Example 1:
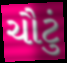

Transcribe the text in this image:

ચૌટું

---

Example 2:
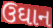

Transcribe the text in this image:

ઉઘાન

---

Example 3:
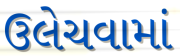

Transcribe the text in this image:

ઉલેચવામાં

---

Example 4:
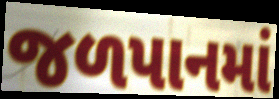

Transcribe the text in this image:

જળપાનમાં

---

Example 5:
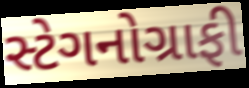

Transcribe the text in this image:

સ્ટેગનોગ્રાફી